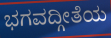
ಭಗವದ್ಗೀತೆಯ